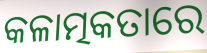
କଳାତ୍ମକତାରେ